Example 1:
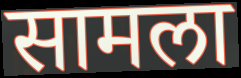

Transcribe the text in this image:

सामला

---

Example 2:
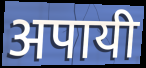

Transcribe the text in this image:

अपायी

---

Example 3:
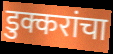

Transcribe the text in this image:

डुक्करांचा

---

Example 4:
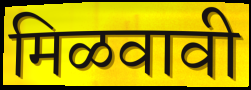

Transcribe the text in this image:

मिळवावी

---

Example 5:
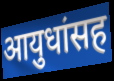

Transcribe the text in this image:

आयुधांसह